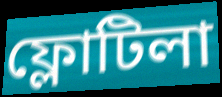
ফ্লোটিলা